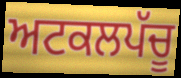
ਅਟਕਲਪੱਚੂ